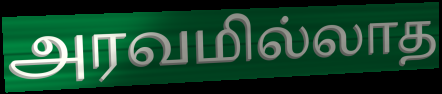
அரவமில்லாத